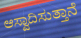
ಆಸ್ವಾದಿಸುತ್ತಾನೆ